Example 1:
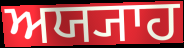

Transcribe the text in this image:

ਅਯ੍ਯਾਹ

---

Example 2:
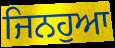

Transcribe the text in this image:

ਜਿਨਹੁਆ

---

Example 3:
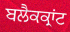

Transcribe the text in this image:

ਬਲੈਕਕ੍ਰਾਂਟ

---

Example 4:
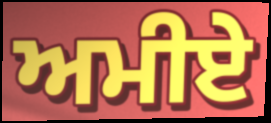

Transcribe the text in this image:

ਅਮੀਏ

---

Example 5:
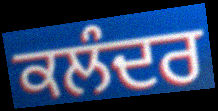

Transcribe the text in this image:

ਕਲੰਦਰ